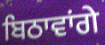
ਬਿਠਾਵਾਂਗੇ